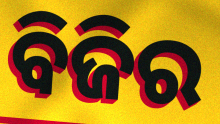
ବିଜିର